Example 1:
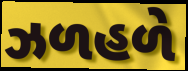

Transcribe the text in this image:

ઝળહળે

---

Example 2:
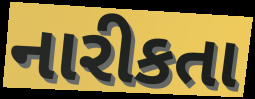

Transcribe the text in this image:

નારીકતા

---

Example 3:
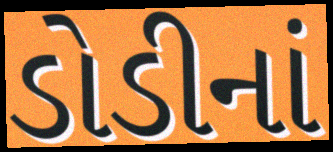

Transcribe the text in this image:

ડોડીનાં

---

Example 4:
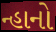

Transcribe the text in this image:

ન્હાનો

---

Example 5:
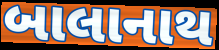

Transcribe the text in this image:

બાલાનાથ